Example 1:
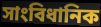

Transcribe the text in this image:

সাংবিধানিক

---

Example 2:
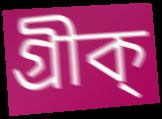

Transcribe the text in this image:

গ্ৰীক্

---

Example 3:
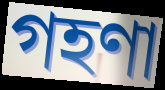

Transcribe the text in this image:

গহণা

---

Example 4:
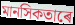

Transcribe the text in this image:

মানসিকতাৰে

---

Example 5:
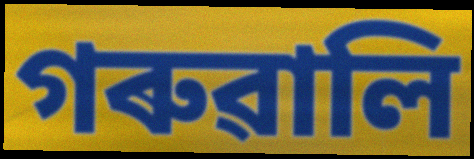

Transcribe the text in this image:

গৰুৱালি